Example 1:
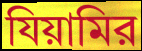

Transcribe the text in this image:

যিয়ামির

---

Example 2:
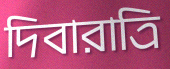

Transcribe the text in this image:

দিবারাত্রি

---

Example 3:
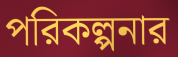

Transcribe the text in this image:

পরিকল্পনার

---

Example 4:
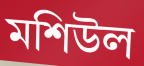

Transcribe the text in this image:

মশিউল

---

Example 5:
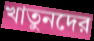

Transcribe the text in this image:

খাতুনদের